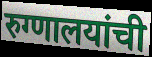
रुग्णालयांची